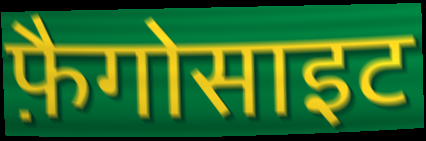
फ़ैगोसाइट